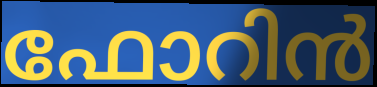
ഫോറിൻ